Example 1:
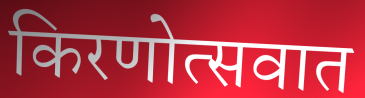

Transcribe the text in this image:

किरणोत्सवात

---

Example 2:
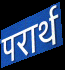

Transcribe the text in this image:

परार्थ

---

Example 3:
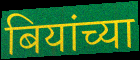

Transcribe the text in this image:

बियांच्या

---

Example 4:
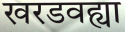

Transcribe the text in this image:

खरडवह्या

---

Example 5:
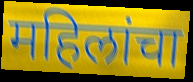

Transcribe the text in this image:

महिलांचा